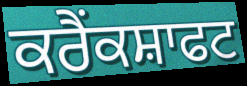
ਕਰੈਂਕਸ਼ਾਫਟ